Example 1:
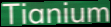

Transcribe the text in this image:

Tianium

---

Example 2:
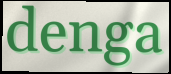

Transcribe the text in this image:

denga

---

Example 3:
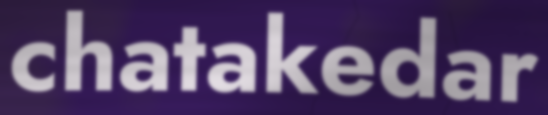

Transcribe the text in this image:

chatakedar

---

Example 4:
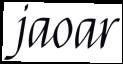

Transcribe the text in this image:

jaoar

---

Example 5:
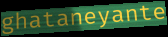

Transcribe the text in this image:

ghataneyante